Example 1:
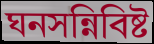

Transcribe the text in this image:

ঘনসন্নিবিষ্ট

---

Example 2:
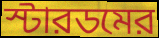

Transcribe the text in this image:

স্টারডমের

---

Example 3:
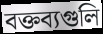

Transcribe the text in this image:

বক্তব্যগুলি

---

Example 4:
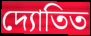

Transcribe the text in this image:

দ্যোতিত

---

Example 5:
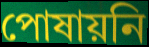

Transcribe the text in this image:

পোষায়নি